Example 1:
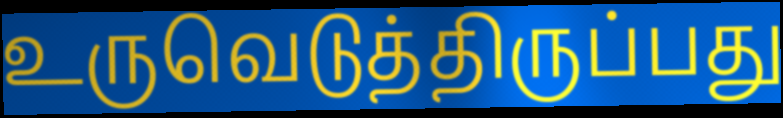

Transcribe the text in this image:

உருவெடுத்திருப்பது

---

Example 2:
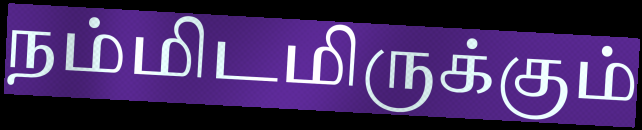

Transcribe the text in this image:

நம்மிடமிருக்கும்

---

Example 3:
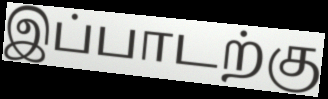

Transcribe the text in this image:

இப்பாடற்கு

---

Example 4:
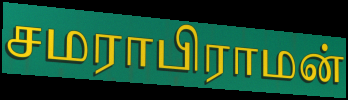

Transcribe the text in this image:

சமராபிராமன்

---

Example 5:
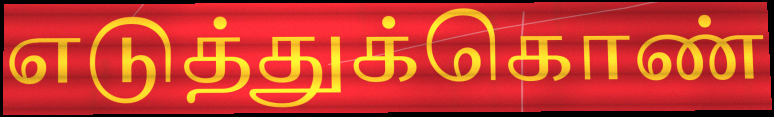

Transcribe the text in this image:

எடுத்துக்கொண்